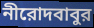
নীরোদবাবুর